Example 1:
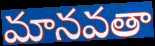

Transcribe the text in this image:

మానవతా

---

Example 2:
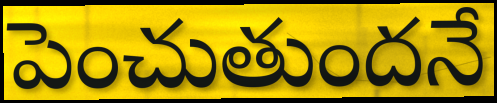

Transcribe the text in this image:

పెంచుతుందనే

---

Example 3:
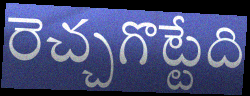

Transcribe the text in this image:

రెచ్చగొట్టేది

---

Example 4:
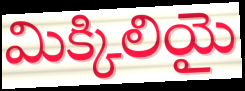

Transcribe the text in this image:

మిక్కిలియై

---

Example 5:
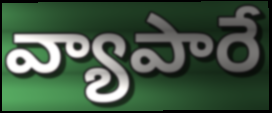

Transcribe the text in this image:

వ్యాపారే